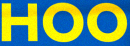
HOO